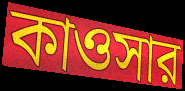
কাওসার